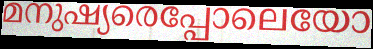
മനുഷ്യരെപ്പോലെയോ